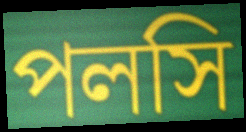
পলসি